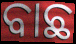
ବାଛ